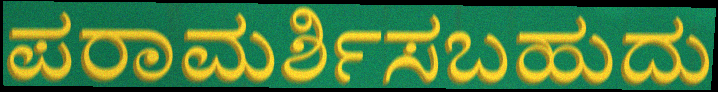
ಪರಾಮರ್ಶಿಸಬಹುದು